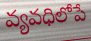
వ్యవధిలోపే